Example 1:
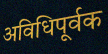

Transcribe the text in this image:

अविधिपूर्वक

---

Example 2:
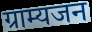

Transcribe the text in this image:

ग्राम्यजन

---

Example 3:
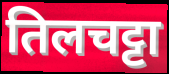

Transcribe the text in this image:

तिलचट्टा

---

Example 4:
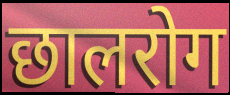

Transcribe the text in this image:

छालरोग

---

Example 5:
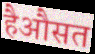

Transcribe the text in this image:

हैऔसत